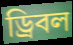
ড্রিবল